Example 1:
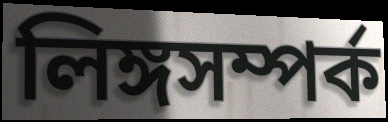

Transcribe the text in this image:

লিঙ্গসম্পর্ক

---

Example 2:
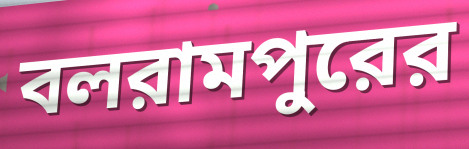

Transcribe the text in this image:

বলরামপুরের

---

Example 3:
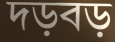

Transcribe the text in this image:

দড়বড়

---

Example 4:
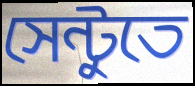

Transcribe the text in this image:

সেন্টুতে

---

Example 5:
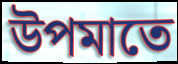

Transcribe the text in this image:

উপমাতে